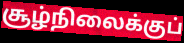
சூழ்நிலைக்குப்